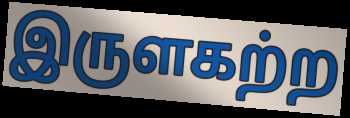
இருளகற்ற